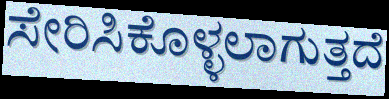
ಸೇರಿಸಿಕೊಳ್ಳಲಾಗುತ್ತದೆ